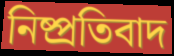
নিষ্প্রতিবাদ